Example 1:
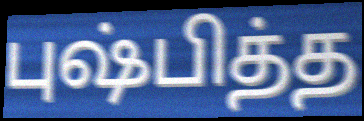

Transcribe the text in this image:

புஷ்பித்த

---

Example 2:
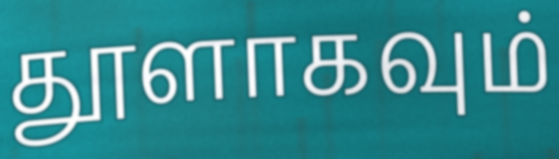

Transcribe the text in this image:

தூளாகவும்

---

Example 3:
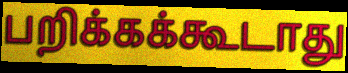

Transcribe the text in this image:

பறிக்கக்கூடாது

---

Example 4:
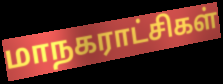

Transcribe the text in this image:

மாநகராட்சிகள்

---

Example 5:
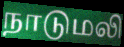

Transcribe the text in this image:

நாடுமலி